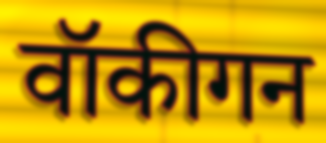
वॉकीगन